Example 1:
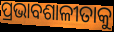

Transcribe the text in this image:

ପ୍ରଭାବଶାଳୀତାକୁ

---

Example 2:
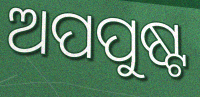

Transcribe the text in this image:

ଅପପୁଷ୍ଟ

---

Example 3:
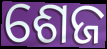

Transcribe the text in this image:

ଶେଜ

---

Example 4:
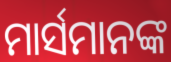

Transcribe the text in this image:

ମାର୍ସମାନଙ୍କ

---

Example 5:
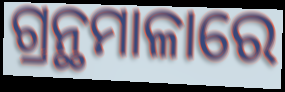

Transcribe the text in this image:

ଗ୍ରନ୍ଥମାଳାରେ